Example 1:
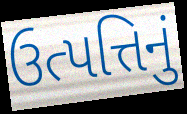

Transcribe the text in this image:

ઉત્પત્તિનું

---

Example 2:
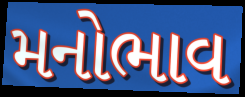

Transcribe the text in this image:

મનોભાવ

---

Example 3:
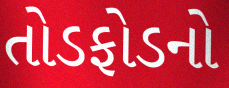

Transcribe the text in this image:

તોડફોડનો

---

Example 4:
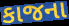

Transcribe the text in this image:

કાજના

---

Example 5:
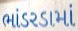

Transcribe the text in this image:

ભાંડરડામાં